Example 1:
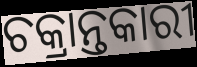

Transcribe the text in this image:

ଚକ୍ରାନ୍ତକାରୀ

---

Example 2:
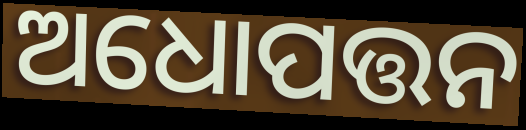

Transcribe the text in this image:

ଅଧୋପତ୍ତନ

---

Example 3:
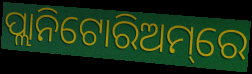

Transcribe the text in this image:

ପ୍ଲାନିଟୋରିଅମ୍‌ରେ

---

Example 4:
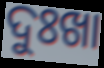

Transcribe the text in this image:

ଦୁଃଖା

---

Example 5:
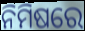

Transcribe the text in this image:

ନିମିଷରେ